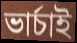
ভাৰ্চাই